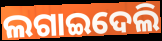
ଲଗାଇଦେଲି